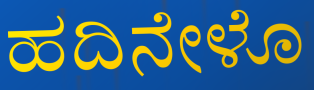
ಹದಿನೇಳೊ